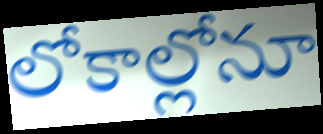
లోకాల్లోనూ